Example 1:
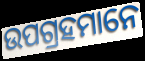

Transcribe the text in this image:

ଉପଗ୍ରହମାନେ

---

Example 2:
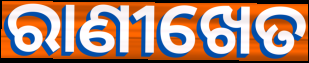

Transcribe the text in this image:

ରାଣୀଖେତ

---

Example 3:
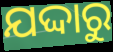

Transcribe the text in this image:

ଯଦ୍ଦାରୁ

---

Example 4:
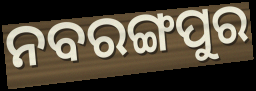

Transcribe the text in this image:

ନବରଙ୍ଗପୁର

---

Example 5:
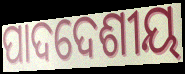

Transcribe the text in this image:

ପାଦଦେଶୀୟ